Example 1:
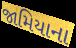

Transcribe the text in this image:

જામિયાના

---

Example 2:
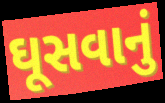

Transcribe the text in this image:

ઘૂસવાનું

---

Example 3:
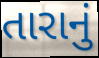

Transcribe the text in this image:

તારાનું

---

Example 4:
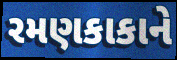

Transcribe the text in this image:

રમણકાકાને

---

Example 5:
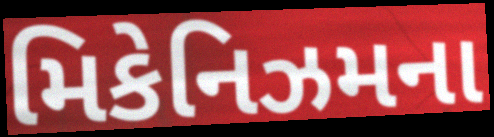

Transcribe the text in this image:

મિકેનિઝમના